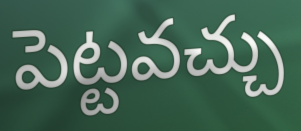
పెట్టవచ్చు